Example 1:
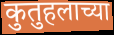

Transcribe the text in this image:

कुतुहलाच्या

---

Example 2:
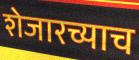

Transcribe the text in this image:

शेजारच्याच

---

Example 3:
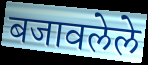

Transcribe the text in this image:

बजावलेले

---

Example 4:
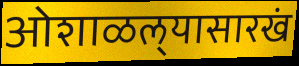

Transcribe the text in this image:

ओशाळल्यासारखं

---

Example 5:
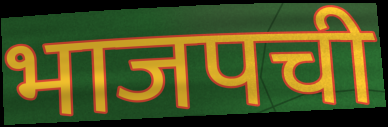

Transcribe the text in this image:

भाजपची